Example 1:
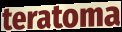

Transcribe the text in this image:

teratoma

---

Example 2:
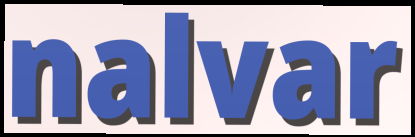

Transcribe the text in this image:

nalvar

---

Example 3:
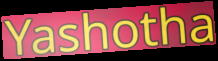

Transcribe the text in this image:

Yashotha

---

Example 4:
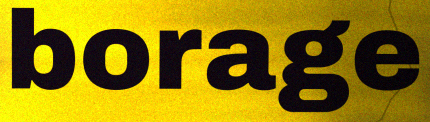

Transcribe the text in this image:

borage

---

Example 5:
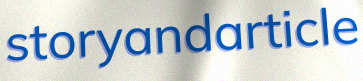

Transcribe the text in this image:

storyandarticle